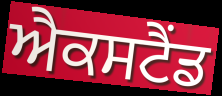
ਐਕਸਟੈਂਡ